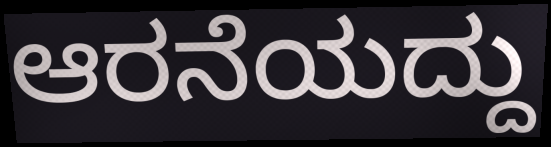
ಆರನೆಯದ್ದು